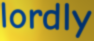
lordly